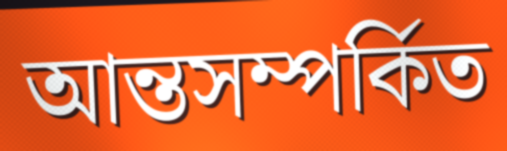
আন্তসম্পর্কিত